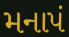
મનાપં